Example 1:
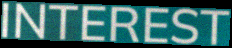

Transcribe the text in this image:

INTEREST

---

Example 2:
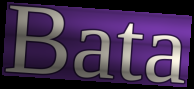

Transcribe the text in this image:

Bata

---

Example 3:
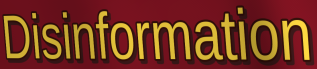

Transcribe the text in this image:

Disinformation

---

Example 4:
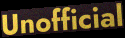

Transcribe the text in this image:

Unofficial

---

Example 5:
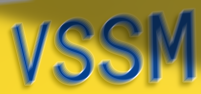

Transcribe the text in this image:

VSSM